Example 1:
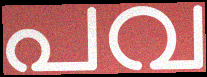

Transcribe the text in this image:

പവ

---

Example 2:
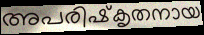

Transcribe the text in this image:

അപരിഷ്‌കൃതനായ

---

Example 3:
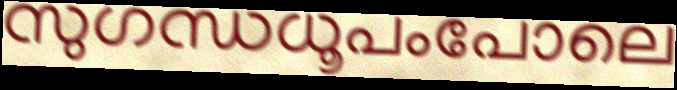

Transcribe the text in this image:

സുഗന്ധധൂപംപോലെ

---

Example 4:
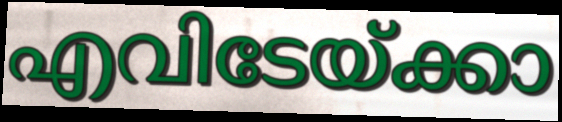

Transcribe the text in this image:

എവിടേയ്ക്കാ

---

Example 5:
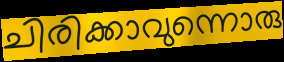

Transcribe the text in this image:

ചിരിക്കാവുന്നൊരു